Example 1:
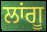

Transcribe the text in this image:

ਲਾਂਗੂ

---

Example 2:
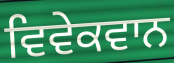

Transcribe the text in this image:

ਵਿਵੇਕਵਾਨ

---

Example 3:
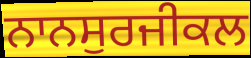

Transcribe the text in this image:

ਨਾਨਸੁਰਜੀਕਲ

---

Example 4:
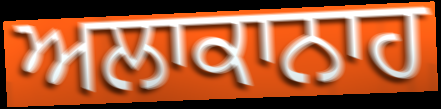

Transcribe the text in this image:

ਅਲਾਕਾਨਾਹ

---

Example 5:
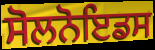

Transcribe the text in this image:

ਸੋਲਨੋਇਡਸ